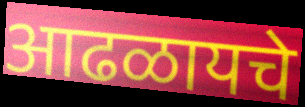
आढळायचे